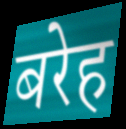
बरेह